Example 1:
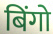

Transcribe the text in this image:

बिंगो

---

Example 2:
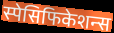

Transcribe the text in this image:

स्पेसिफिकेशन्स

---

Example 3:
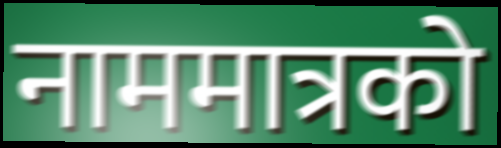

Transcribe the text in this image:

नाममात्रको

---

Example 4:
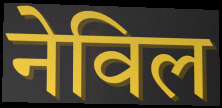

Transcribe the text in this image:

नेविल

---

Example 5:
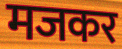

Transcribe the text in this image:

मजकर